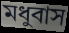
মধুবাস